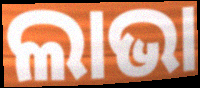
ଲାଭା